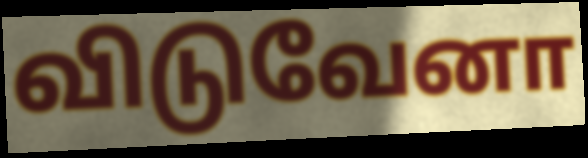
விடுவேனா